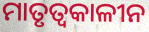
ମାତୃତ୍ୱକାଳୀନ